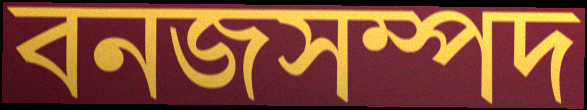
বনজসম্পদ